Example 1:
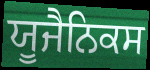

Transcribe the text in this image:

ਯੂਜੈਨਿਕਸ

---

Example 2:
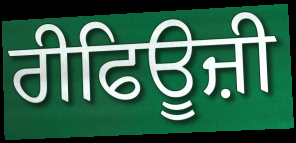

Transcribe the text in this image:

ਰੀਫਿਊਜ਼ੀ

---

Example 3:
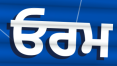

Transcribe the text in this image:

ਓਰਮ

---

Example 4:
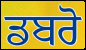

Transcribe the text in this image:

ਡਬਰੋ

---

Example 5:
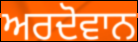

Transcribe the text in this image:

ਅਰਦੋਵਾਨ